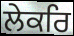
ਲੇਕਰਿ